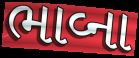
ભાવ્ના